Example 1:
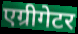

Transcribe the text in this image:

एग्रीगेटर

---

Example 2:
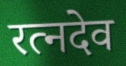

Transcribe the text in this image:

रत्नदेव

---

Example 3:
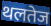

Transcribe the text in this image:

थलतेज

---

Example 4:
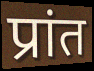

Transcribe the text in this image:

प्रांत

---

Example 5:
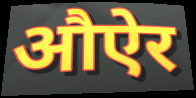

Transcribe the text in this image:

औऐर